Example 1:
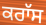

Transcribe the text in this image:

ਕਰਾੱਸ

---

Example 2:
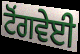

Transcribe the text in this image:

ਟੋਂਗਵੇਈ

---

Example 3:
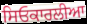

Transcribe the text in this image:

ਸਿਓਕਾਰਲੀਆ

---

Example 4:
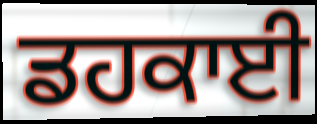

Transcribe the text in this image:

ਡਹਕਾਈ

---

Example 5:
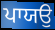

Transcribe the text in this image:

ਪਾਯਉ